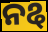
ନୡ